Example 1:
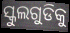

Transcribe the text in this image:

ସ୍କୁଲଗୁଡିକୁ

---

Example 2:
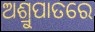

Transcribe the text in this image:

ଅଶ୍ରୁପାତରେ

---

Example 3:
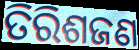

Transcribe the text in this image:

ତିରିଶଜଣ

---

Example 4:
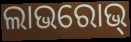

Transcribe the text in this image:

ଲାଭରୋଭ୍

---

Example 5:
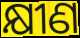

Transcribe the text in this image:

କ୍ଷୀଣ